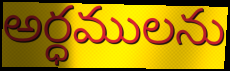
అర్ధములను